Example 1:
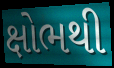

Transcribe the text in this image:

ક્ષોભથી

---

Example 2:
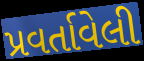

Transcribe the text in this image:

પ્રવર્તાવેલી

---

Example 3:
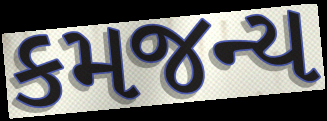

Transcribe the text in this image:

કમજન્ય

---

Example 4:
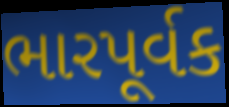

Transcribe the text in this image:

ભારપૂર્વક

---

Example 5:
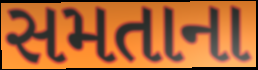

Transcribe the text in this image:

સમતાના